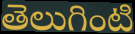
తెలుగింటి